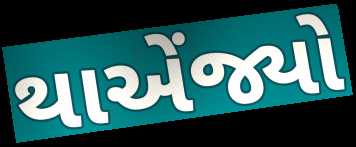
થાએંજ્યો